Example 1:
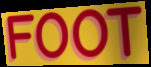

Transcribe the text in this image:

FOOT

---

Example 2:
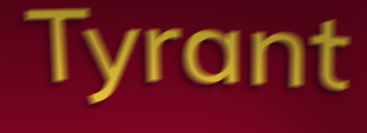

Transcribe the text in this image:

Tyrant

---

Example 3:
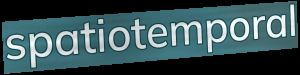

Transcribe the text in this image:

spatiotemporal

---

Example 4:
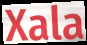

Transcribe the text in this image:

Xala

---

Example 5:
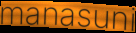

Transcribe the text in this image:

manasuni